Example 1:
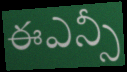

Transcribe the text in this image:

ఈఎన్సీ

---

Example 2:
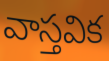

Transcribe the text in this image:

వాస్తవిక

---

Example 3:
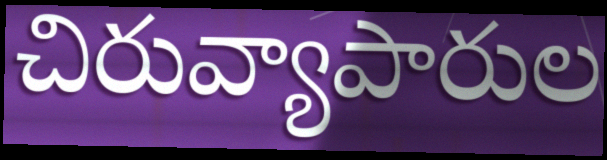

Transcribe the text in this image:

చిరువ్యాపారుల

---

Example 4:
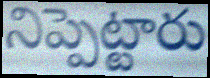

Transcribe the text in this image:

నిప్పెట్టారు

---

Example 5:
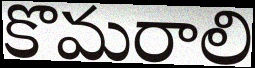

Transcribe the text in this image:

కొమరాలి